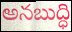
అనబుద్ధి